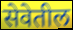
सेवेतील